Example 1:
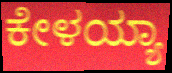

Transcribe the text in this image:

ಕೇಳಯ್ಯಾ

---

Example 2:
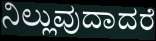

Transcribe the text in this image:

ನಿಲ್ಲುವುದಾದರೆ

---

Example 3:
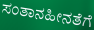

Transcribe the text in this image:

ಸಂತಾನಹೀನತೆಗೆ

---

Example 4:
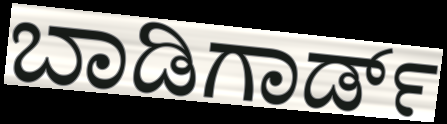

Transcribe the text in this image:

ಬಾಡಿಗಾರ್ಡ್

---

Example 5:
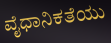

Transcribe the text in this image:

ವೈಧಾನಿಕತೆಯು